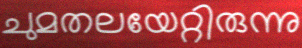
ചുമതലയേറ്റിരുന്നു